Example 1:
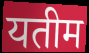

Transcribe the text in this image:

यतीम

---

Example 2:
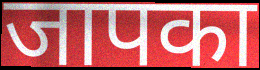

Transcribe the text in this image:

जापका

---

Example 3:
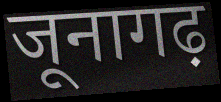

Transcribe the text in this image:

जूनागढ़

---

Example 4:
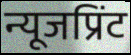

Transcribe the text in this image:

न्यूजप्रिंट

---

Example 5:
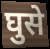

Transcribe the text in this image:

घुसे